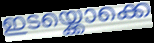
ഇടയ്ക്കൊക്കെ